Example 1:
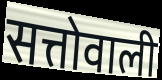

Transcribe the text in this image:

सत्तोवाली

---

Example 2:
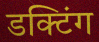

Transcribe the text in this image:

डक्टिंग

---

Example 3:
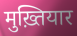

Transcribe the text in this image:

मुख़्तियार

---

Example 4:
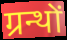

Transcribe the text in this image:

ग्रन्थों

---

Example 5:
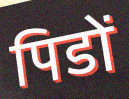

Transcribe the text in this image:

पिडों